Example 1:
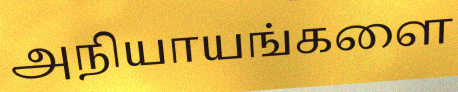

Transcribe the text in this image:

அநியாயங்களை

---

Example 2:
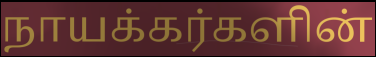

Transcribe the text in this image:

நாயக்கர்களின்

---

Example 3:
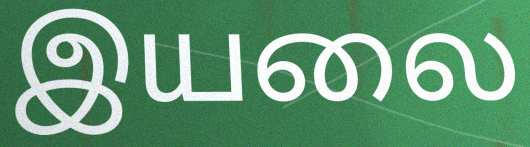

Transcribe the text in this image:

இயலை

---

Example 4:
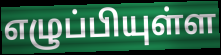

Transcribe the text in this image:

எழுப்பியுள்ள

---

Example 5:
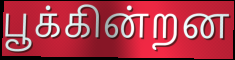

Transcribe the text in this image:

பூக்கின்றன